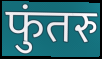
फुंतरु